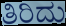
ತಿರಿದು